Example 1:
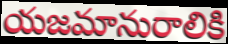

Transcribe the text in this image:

యజమానురాలికి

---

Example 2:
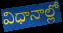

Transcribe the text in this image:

విధానాల్లో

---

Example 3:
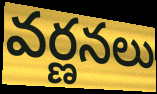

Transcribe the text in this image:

వర్ణనలు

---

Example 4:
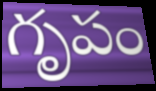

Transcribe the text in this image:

గృపం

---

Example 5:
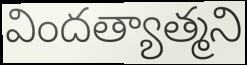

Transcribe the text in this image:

విందత్యాత్మని